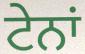
ਟੇਨਾਂ